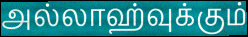
அல்லாஹ்வுக்கும்